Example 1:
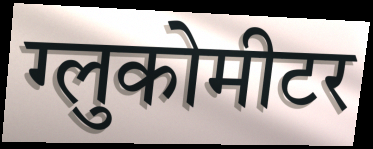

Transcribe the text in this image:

ग्लुकोमीटर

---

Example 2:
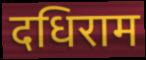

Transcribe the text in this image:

दधिराम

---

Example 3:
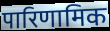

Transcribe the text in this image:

पारिणामिक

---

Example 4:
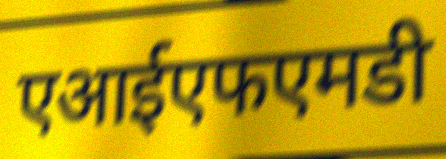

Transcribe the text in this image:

एआईएफएमडी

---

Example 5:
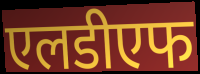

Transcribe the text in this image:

एलडीएफ